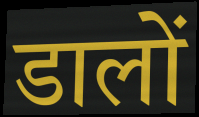
डालों